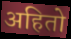
अहितो